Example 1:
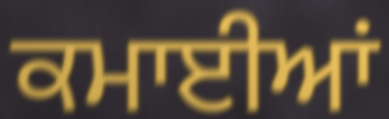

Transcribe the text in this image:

ਕਮਾਈਆਂ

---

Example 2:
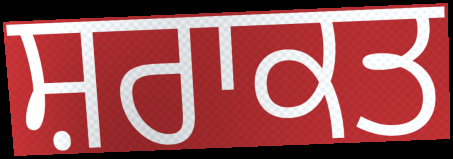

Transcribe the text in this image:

ਸ਼ਰਾਕਤ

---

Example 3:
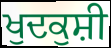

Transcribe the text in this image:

ਖੁਦਕੁਸ਼ੀ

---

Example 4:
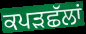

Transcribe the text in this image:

ਕਪੜਛੱਲਾਂ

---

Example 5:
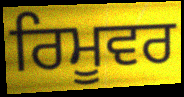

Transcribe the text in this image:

ਰਿਮੂਵਰ